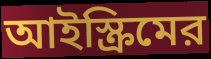
আইস্ক্রিমের